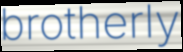
brotherly